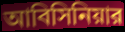
আবিসিনিয়ার